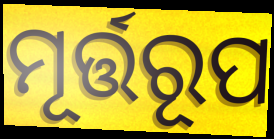
ମୂର୍ତ୍ତରୂପ